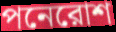
পনেরোশ